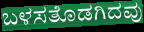
ಬಳಸತೊಡಗಿದವು